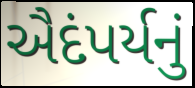
ઐદંપર્યનું